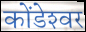
कोंडेश्वर